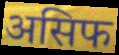
असिफ